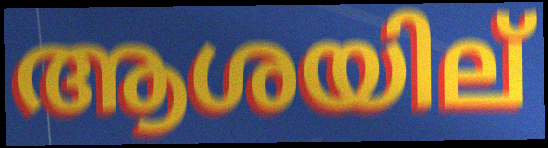
ആശയില്